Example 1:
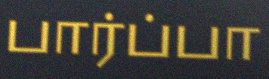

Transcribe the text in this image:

பார்ப்பா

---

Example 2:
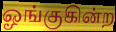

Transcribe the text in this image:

ஓங்குகின்ற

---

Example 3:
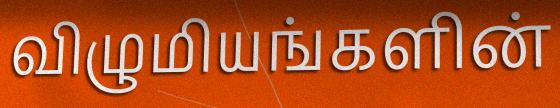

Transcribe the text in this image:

விழுமியங்களின்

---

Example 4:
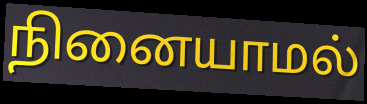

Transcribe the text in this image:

நினையாமல்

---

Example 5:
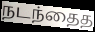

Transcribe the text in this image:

நடந்தைத